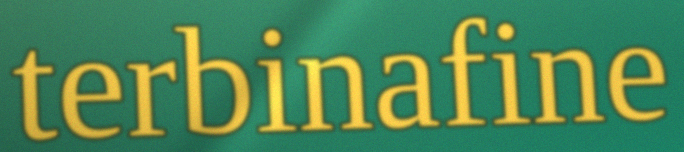
terbinafine